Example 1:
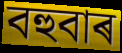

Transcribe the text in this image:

বহুবাৰ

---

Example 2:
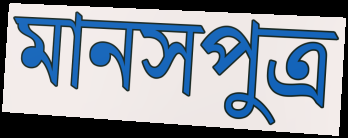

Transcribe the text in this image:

মানসপুত্ৰ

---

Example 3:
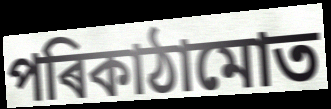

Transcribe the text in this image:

পৰিকাঠামোত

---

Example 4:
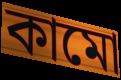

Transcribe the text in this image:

কামো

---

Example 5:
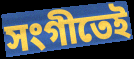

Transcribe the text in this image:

সংগীতেই